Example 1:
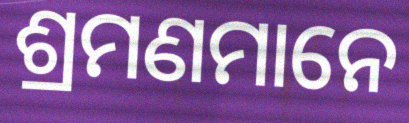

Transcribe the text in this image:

ଶ୍ରମଣମାନେ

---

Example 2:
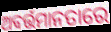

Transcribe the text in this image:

ଅବର୍ତ୍ତମାନତାରେ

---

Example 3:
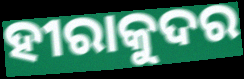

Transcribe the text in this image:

ହୀରାକୁଦର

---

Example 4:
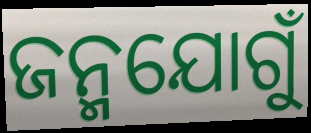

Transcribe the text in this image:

ଜନ୍ମଯୋଗୁଁ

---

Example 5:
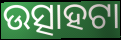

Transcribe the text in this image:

ଉତ୍ସାହଟା